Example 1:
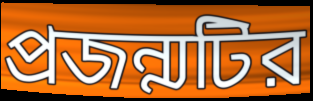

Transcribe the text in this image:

প্রজন্মটির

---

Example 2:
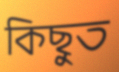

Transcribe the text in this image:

কিছুত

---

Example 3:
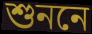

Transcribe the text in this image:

শুননে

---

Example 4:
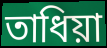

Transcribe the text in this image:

তাধিয়া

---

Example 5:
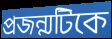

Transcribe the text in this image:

প্রজন্মটিকে